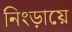
নিংড়ায়ে